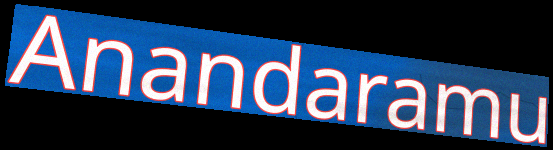
Anandaramu